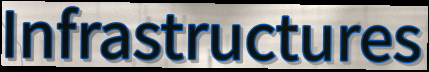
Infrastructures